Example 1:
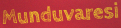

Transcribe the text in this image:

Munduvaresi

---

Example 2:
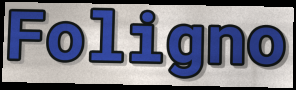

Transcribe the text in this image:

Foligno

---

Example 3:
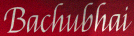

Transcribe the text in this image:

Bachubhai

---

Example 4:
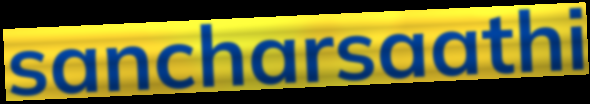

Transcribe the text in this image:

sancharsaathi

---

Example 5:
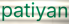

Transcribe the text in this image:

patiyan